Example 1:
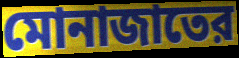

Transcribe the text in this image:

মোনাজাতের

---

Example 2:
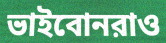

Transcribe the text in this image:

ভাইবোনরাও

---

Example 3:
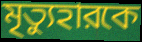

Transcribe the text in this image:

মৃত্যুহারকে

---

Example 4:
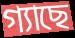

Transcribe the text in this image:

গ্যাছে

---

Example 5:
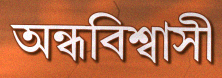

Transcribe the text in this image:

অন্ধবিশ্বাসী